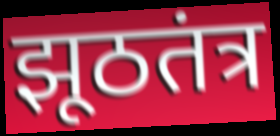
झूठतंत्र